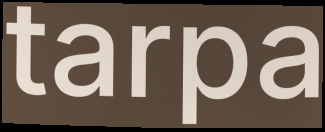
tarpa